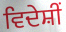
ਵਿਦੇਸ਼ੀਂ